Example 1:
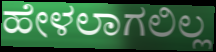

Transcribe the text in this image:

ಹೇಳಲಾಗಲಿಲ್ಲ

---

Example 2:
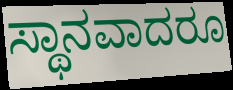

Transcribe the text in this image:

ಸ್ಥಾನವಾದರೂ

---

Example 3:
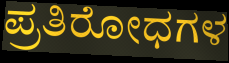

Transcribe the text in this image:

ಪ್ರತಿರೋಧಗಳ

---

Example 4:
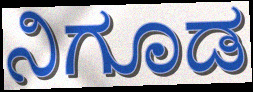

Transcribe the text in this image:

ನಿಗೂಡ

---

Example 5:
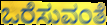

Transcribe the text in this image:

ಒರೆಸುವಂತೆ